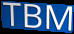
TBM